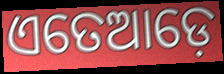
ଏତେଆଡ଼େ